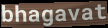
bhagavat